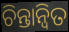
ଚିନ୍ତାନ୍ୱିତ